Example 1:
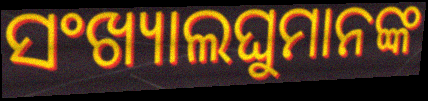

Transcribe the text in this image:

ସଂଖ୍ୟାଲଘୁମାନଙ୍କ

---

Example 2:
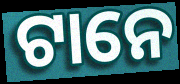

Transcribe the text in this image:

ଟାନେ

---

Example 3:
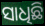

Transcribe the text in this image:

ସାଧିଛି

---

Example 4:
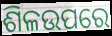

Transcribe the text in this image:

ଶିଳଉପରେ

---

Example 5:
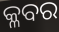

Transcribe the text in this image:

କ୍ଳବର